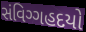
સંવિગ્ગહદયો